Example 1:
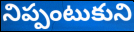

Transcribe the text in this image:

నిప్పంటుకుని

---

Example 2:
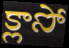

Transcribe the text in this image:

క్లాసో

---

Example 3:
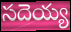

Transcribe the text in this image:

సదెయ్య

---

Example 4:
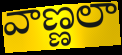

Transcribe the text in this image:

వాణ్ణలా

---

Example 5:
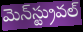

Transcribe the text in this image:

మెన్‌స్ట్రువల్